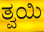
ತ್ವಯಿ